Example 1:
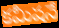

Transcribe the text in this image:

కమీషనే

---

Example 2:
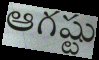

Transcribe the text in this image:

ఆగష్టు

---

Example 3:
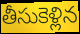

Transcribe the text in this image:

తీసుకెళ్లిన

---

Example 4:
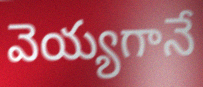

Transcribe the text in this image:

వెయ్యగానే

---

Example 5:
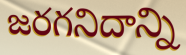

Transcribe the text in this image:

జరగనిదాన్ని